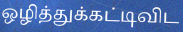
ஒழித்துக்கட்டிவிட